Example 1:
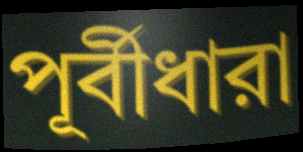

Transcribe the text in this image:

পূর্বীধারা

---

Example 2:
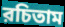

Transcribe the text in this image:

রচিতাম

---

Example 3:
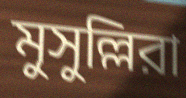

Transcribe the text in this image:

মুসুল্লিরা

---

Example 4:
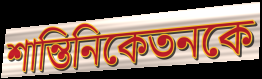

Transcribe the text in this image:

শান্তিনিকেতনকে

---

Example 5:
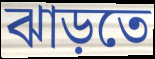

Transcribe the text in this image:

ঝাড়তে